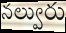
నల్వురు